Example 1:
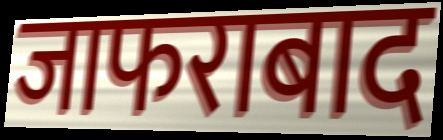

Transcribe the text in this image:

जाफराबाद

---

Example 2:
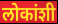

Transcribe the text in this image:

लोकांशी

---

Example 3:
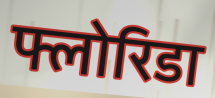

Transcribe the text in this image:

फ्लोरिडा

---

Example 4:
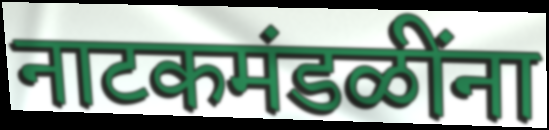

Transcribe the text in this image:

नाटकमंडळींना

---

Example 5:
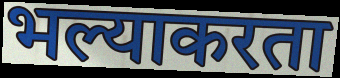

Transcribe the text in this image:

भल्याकरता